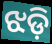
ଝଡ଼ି